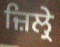
ਜ਼ਿਲ੍ਰੇ